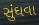
સુંઘવા